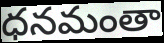
ధనమంతా